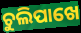
ଚୁଲିପାଖେ